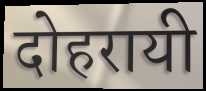
दोहरायी